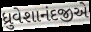
ધ્રુવેશાનંદજીએ